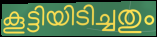
കൂട്ടിയിടിച്ചതും